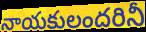
నాయకులందరినీ